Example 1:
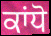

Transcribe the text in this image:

ਕਾਂਧੋ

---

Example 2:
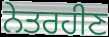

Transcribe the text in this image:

ਨੇਤਰਹੀਣ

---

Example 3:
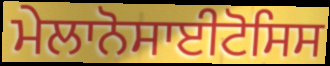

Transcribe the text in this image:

ਮੇਲਾਨੋਸਾਈਟੋਸਿਸ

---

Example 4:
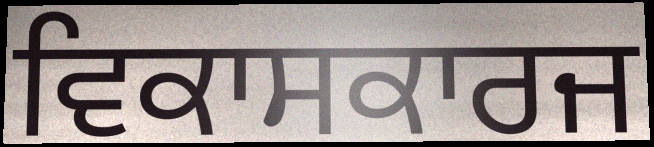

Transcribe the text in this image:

ਵਿਕਾਸਕਾਰਜ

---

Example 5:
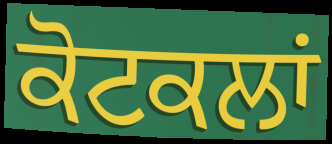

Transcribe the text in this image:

ਕੋਟਕਲਾਂ